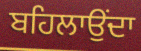
ਬਹਿਲਾਉਂਦਾ